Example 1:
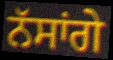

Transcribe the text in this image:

ਨੱਸਾਂਗੇ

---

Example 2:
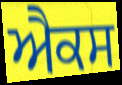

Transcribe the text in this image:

ਐਕਸ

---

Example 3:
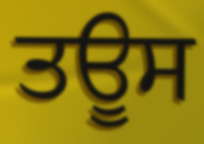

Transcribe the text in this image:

ਤਊਸ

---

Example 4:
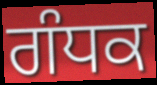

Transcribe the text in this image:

ਗੰਧਕ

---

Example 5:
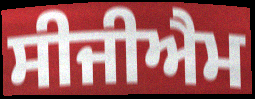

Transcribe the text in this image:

ਸੀਜੀਐਮ